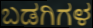
ಬಡಗಿಗಳ